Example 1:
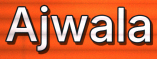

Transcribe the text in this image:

Ajwala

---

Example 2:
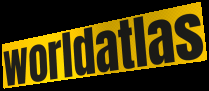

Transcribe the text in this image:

worldatlas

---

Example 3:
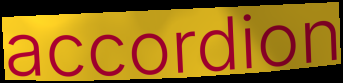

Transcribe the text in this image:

accordion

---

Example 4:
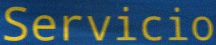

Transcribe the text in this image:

Servicio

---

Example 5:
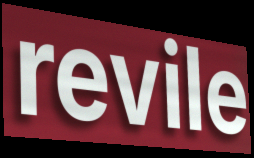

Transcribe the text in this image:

revile